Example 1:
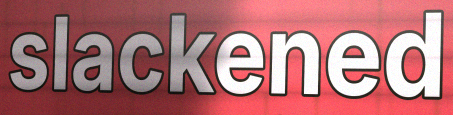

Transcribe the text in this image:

slackened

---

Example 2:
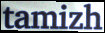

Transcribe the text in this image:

tamizh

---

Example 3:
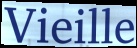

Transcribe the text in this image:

Vieille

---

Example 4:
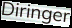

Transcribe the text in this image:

Diringer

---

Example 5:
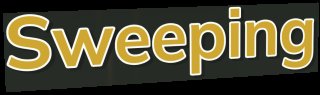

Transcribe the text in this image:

Sweeping